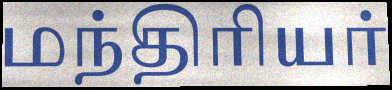
மந்திரியர்